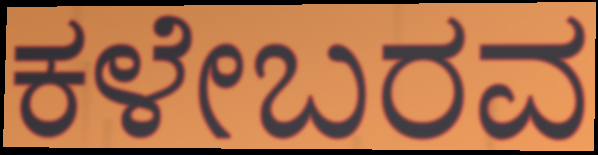
ಕಳೇಬರವ